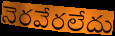
నెరవేరలేదు